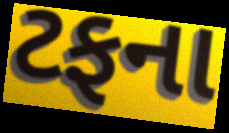
ટફના